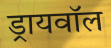
ड्रायवॉल